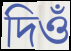
দিওঁ